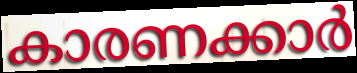
കാരണക്കാർ